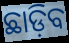
ଛାଡ଼ିବ